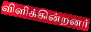
விளிக்கின்றனர்